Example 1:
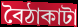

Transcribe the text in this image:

বৈঠাকাটা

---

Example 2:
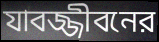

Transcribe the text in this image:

যাবজ্জীবনের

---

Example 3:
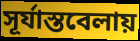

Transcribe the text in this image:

সূর্যাস্তবেলায়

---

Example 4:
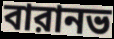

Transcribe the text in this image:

বারানভ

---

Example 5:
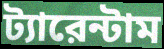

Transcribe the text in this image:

ট্যারেন্টাম